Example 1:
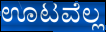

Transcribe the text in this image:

ಊಟವೆಲ್ಲ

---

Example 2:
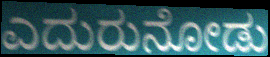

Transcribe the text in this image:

ಎದುರುನೋಡು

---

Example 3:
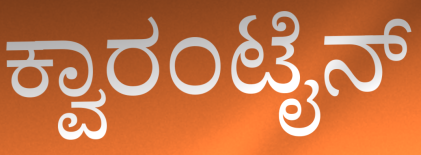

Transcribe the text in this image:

ಕ್ವಾರಂಟೈನ್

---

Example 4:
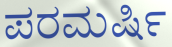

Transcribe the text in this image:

ಪರಮರ್ಷಿ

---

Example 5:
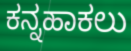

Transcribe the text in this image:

ಕನ್ನಹಾಕಲು